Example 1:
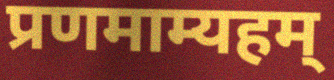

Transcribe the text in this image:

प्रणमाम्यहम्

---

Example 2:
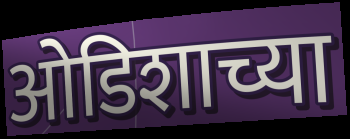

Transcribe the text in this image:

ओडिशाच्या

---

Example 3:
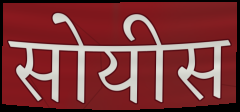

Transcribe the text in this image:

सोयीस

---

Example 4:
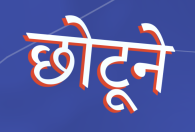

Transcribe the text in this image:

छोटूने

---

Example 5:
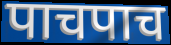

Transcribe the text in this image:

पाचपाच